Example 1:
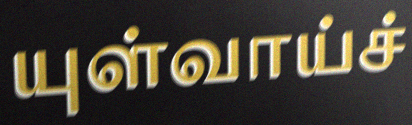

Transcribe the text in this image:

யுள்வாய்ச்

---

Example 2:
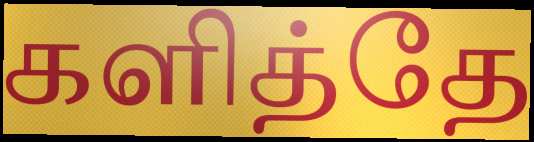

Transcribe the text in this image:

களித்தே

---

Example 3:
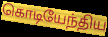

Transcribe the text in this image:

கொடியேந்திய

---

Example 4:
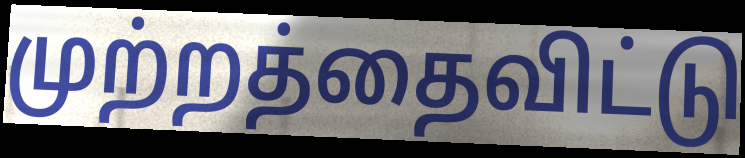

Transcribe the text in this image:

முற்றத்தைவிட்டு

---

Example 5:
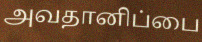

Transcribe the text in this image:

அவதானிப்பை